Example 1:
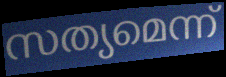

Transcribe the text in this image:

സത്യമെന്ന്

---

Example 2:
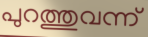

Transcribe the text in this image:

പുറത്തുവന്ന്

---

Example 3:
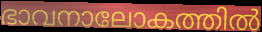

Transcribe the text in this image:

ഭാവനാലോകത്തിൽ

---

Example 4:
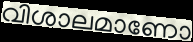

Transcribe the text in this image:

വിശാലമാണോ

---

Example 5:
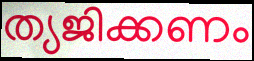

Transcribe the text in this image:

ത്യജിക്കണം